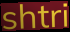
shtri